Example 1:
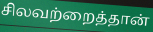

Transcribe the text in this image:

சிலவற்றைத்தான்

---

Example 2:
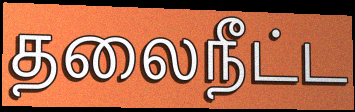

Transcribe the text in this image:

தலைநீட்ட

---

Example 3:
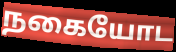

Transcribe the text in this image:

நகையோட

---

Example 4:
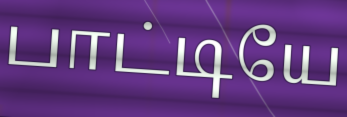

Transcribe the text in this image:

பாட்டியே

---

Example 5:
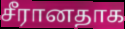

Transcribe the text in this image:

சீரானதாக